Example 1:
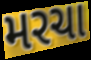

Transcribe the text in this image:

મરચા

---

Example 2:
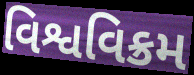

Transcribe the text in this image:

વિશ્વવિક્રમ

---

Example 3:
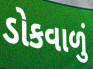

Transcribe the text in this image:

ડોકવાળું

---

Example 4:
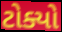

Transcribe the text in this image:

ટોક્યો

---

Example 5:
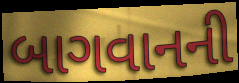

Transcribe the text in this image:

બાગવાનની